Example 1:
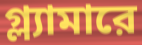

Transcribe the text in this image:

গ্ল্যামারে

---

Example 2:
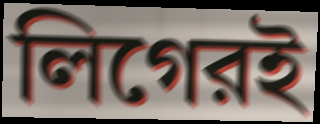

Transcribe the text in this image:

লিগেরই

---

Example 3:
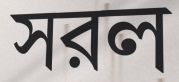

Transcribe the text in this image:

সরল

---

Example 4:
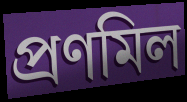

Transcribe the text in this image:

প্রণমিল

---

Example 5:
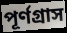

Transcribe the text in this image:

পূর্ণগ্রাস